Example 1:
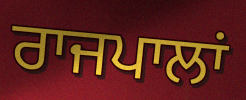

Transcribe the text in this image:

ਰਾਜਪਾਲਾਂ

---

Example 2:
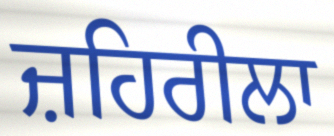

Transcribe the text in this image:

ਜ਼ਹਿਰੀਲਾ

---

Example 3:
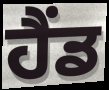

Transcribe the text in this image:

ਹੈਂਡ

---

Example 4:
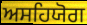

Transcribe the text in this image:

ਅਸਹਿਯੋਗ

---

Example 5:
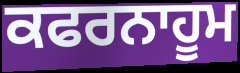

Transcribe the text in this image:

ਕਫਰਨਾਹੂਮ